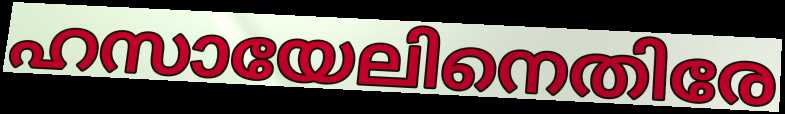
ഹസായേലിനെതിരേ